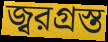
জ্বরগ্রস্ত